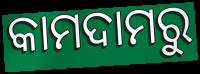
କାମଦାମରୁ